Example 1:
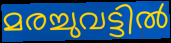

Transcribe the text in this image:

മരച്ചുവട്ടിൽ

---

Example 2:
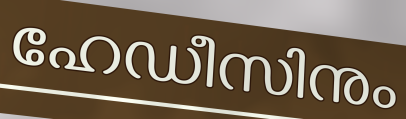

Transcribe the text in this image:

ഹേഡീസിനും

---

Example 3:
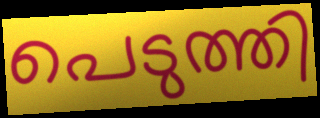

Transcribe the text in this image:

പെടുത്തി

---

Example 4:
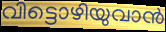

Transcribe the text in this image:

വിട്ടൊഴിയുവാൻ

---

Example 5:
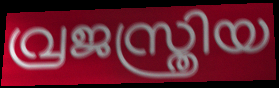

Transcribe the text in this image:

വ്രജസ്ത്രിയ